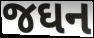
જઘન